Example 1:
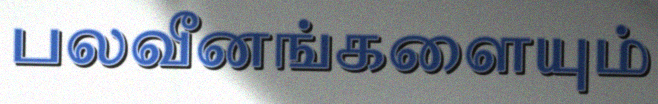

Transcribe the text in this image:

பலவீனங்களையும்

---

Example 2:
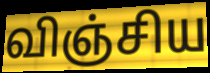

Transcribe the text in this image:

விஞ்சிய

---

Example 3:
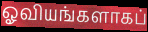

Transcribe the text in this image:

ஓவியங்களாகப்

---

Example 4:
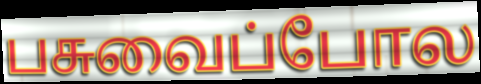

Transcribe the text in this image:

பசுவைப்போல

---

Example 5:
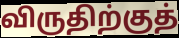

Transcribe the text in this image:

விருதிற்குத்